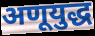
अणूयुद्ध